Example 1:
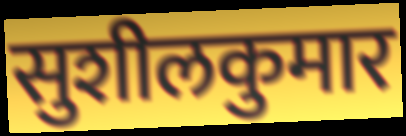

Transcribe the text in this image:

सुशीलकुमार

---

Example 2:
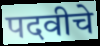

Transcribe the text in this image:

पदवीचे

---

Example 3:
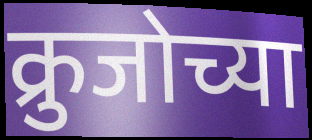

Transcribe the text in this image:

क्रुजोच्या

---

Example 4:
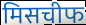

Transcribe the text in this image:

मिसचीफ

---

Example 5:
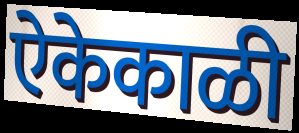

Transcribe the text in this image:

ऐकेकाळी